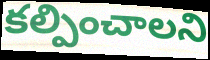
కల్పించాలని